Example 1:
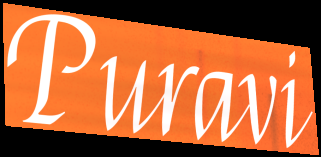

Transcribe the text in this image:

Puravi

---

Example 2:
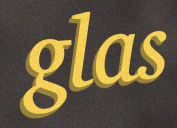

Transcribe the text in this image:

glas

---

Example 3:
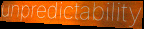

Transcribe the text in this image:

unpredictability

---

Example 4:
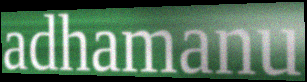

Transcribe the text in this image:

adhamanu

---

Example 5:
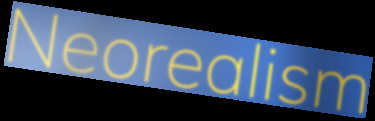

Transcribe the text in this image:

Neorealism